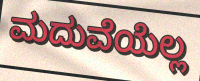
ಮದುವೆಯೆಲ್ಲ